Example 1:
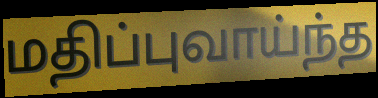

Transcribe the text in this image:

மதிப்புவாய்ந்த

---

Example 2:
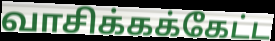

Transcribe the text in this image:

வாசிக்கக்கேட்ட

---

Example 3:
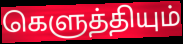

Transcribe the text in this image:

கெளுத்தியும்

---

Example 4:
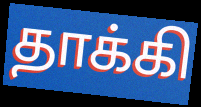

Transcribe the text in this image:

தாக்கி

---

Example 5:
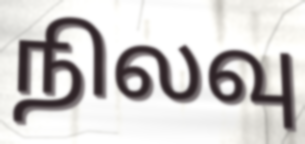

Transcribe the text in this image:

நிலவு